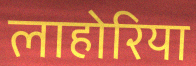
लाहोरिया